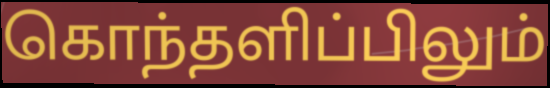
கொந்தளிப்பிலும்